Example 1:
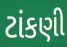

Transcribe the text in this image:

ટાંકણી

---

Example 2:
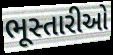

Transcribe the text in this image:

ભૂસ્તારીઓ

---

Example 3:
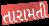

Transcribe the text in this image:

તારામતી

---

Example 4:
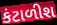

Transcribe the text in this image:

કંટાળીશ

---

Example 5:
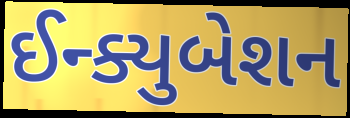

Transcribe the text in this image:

ઈન્ક્યુબેશન